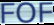
FOF